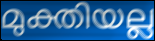
മുക്തിയല്ല